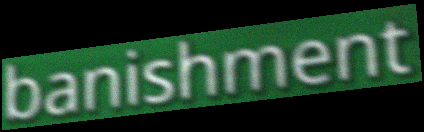
banishment